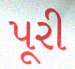
પૂરી